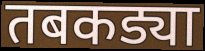
तबकड्या